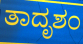
ತಾದೃಶಂ